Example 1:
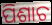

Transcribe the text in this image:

ପିଶାଚ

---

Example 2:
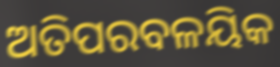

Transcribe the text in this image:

ଅତିପରବଳୟିକ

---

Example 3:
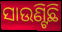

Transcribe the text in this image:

ସାଉଣ୍ଟିଛି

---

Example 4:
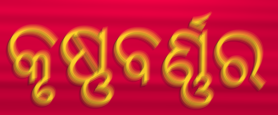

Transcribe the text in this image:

କୃଷ୍ଣବର୍ଣ୍ଣର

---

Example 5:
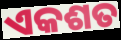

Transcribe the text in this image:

ଏକଶତ